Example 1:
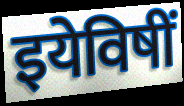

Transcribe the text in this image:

इयेविषीं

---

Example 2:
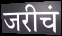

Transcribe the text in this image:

जरीचं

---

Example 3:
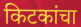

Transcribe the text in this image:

किटकांचा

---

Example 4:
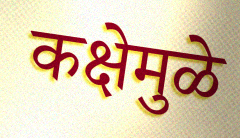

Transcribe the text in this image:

कक्षेमुळे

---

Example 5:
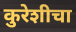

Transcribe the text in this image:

कुरेशीचा